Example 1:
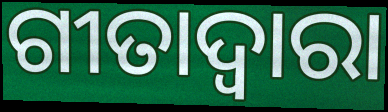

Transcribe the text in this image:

ଗୀତାଦ୍ଵାରା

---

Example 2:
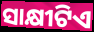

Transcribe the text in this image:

ସାକ୍ଷୀଟିଏ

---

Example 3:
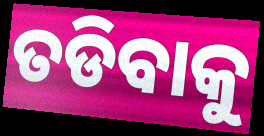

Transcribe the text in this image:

ତଡିବାକୁ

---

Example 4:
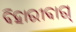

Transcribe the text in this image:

ବିହାରୀବାଗ୍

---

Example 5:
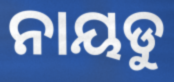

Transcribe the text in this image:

ନାୟଡୁ